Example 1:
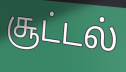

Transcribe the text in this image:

சூட்டல்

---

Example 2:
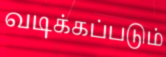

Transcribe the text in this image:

வடிக்கப்படும்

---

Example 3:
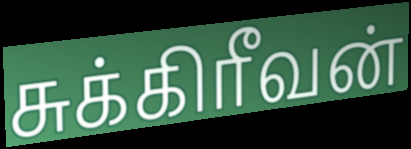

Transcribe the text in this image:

சுக்கிரீவன்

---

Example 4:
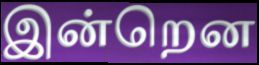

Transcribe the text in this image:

இன்றென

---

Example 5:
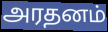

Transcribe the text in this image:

அரதனம்